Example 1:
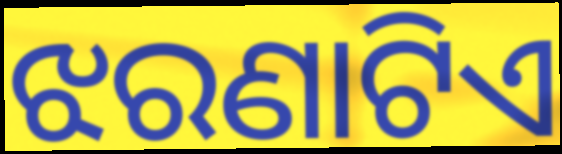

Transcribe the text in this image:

ଝରଣାଟିଏ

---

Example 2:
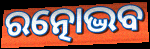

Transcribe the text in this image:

ରତ୍ନୋଦ୍ଭବ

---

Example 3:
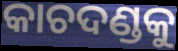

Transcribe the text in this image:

କାଚଦଣ୍ଡକୁ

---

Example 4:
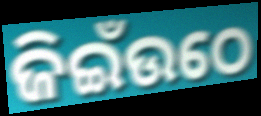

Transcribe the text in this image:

ଜିଇଁଉଠେ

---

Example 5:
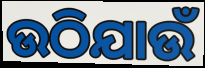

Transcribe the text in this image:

ଉଠିଯାଉଁ